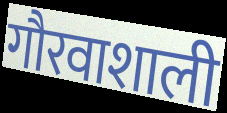
गौरवाशाली